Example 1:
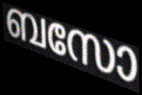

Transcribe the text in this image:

ബസോ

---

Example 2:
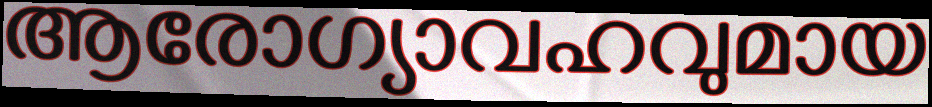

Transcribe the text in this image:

ആരോഗ്യാവഹവുമായ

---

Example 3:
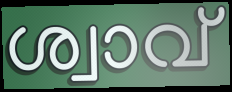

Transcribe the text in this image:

ശ്വാവ്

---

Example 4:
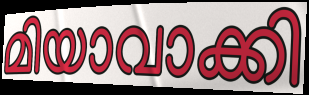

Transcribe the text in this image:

മിയാവാക്കി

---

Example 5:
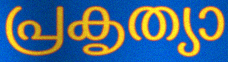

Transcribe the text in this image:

പ്രകൃത്യാ